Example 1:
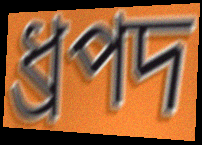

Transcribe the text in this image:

ধ্রপদ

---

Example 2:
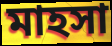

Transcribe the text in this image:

মাহসা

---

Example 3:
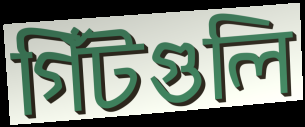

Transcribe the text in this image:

গিঁটগুলি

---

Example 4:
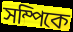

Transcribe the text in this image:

সম্পিকে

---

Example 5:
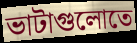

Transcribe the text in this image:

ভাটাগুলোতে